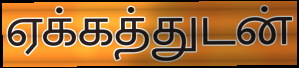
ஏக்கத்துடன்